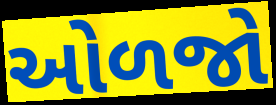
ઓળજો